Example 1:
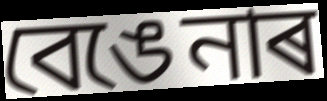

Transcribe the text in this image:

বেঙেনাৰ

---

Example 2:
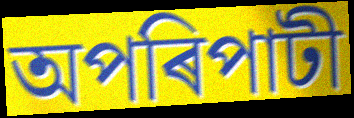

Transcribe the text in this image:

অপৰিপাটী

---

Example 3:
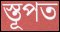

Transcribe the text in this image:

স্তূপত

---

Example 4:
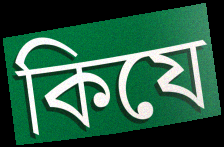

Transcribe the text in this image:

কিযে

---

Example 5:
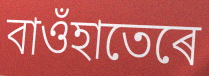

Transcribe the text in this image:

বাওঁহাতেৰে